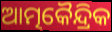
ଆତ୍ମକୈନ୍ଦ୍ରିକ